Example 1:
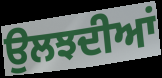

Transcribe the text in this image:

ਉਲਝਦੀਆਂ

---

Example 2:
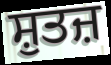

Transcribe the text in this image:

ਸ਼ੁਤਜ਼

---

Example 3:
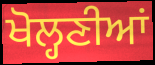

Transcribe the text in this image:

ਖੋਲ੍ਹਣੀਆਂ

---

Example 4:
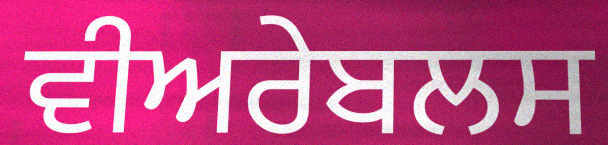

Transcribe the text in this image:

ਵੀਅਰੇਬਲਸ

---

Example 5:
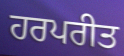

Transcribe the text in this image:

ਹਰਪਰੀਤ